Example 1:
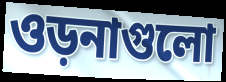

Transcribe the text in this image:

ওড়নাগুলো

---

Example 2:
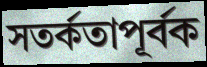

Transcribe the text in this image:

সতর্কতাপূর্বক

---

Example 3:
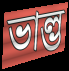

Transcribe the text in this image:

ভাল্ভ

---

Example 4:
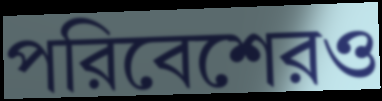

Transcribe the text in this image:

পরিবেশেরও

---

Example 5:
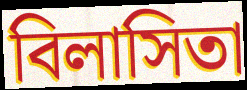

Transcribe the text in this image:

বিলাসিতা